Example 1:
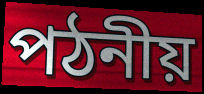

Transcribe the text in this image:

পঠনীয়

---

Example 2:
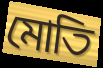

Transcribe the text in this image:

মোতি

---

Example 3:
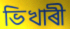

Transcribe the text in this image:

ভিখাৰী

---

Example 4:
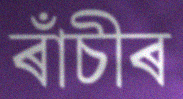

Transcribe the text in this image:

ৰাঁচীৰ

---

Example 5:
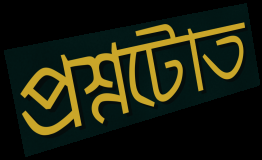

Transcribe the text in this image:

প্ৰশ্নটোত